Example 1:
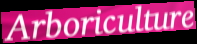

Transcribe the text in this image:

Arboriculture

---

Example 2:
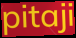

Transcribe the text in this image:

pitaji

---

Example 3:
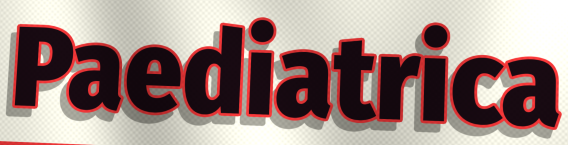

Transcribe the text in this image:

Paediatrica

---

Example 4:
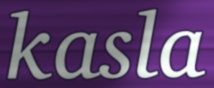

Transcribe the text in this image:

kasla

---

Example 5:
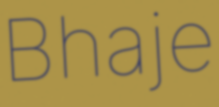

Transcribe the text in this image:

Bhaje